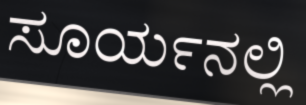
ಸೂರ್ಯನಲ್ಲಿ